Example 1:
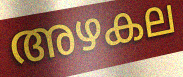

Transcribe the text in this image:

അഴകല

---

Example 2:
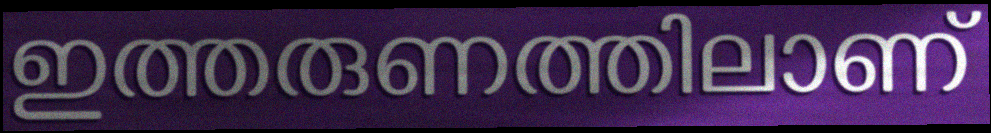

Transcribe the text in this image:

ഇത്തരുണത്തിലാണ്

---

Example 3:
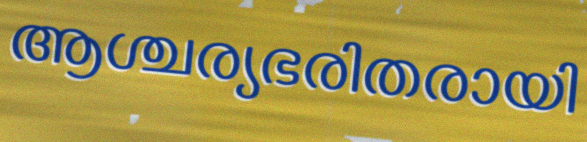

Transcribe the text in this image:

ആശ്ചര്യഭരിതരായി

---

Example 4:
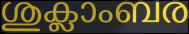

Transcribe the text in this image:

ശുക്ലാംബര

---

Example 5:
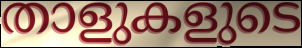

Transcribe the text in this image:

താളുകളുടെ